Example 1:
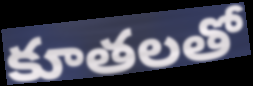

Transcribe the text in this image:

కూతలతో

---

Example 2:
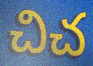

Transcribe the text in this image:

చిచ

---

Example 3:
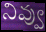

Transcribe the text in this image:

నివ్వు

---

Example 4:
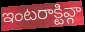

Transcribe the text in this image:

ఇంటరాక్టివ్గా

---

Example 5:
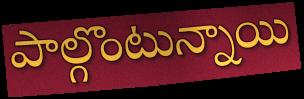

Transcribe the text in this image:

పాల్గొంటున్నాయి